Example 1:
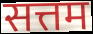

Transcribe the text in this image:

सत्तम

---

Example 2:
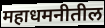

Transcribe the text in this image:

महाधमनीतील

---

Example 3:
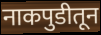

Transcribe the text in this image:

नाकपुडीतून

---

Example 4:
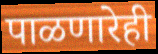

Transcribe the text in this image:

पाळणारेही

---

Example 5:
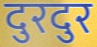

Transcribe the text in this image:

दुरदुर